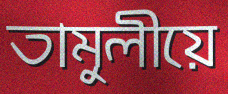
তামুলীয়ে